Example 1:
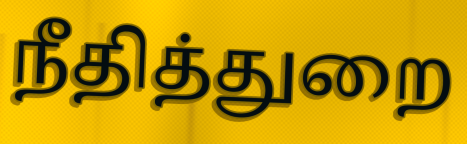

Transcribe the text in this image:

நீதித்துறை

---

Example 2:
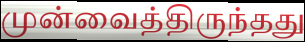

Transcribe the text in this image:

முன்வைத்திருந்தது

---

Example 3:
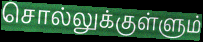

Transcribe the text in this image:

சொல்லுக்குள்ளும்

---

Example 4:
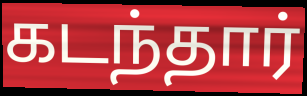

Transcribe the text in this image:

கடந்தார்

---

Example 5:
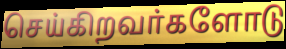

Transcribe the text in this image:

செய்கிறவர்களோடு